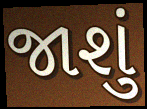
જાશું